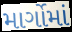
માર્ગોમાં